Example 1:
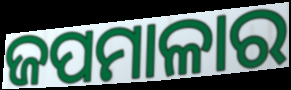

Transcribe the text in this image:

ଜପମାଳାର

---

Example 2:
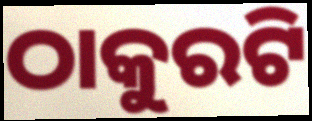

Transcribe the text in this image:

ଠାକୁରଟି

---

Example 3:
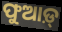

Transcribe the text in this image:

ଫୁଆଡ଼୍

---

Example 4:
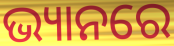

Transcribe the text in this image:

ଭ୍ୟାନରେ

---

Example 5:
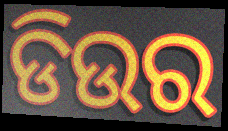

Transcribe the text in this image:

ଡିଉର